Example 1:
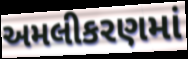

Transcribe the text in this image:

અમલીકરણમાં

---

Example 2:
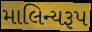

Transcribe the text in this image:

માલિન્યરૂપ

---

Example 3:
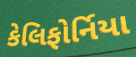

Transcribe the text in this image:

કેલિફોર્નિયા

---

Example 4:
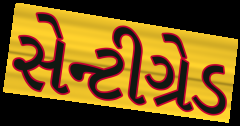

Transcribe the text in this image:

સેન્ટીગ્રેડ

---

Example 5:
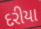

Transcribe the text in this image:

દરીયા